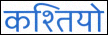
कश्तियो